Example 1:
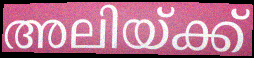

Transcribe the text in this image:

അലിയ്ക്ക്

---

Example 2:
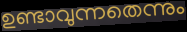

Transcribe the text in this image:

ഉണ്ടാവുന്നതെന്നും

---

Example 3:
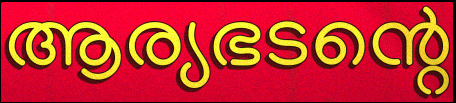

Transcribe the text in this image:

ആര്യഭടന്റെ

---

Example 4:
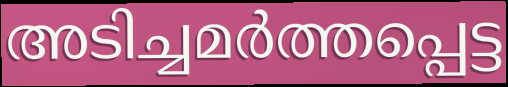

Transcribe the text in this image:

അടിച്ചമർത്തപ്പെട്ട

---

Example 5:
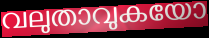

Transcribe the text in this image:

വലുതാവുകയോ